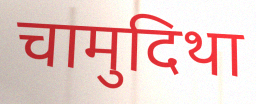
चामुदिथा